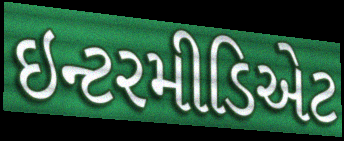
ઇન્ટરમીડિએટ